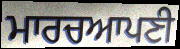
ਮਾਰਚਆਪਣੀ